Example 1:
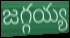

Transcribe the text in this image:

జగ్గయ్య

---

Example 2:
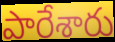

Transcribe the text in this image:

పారేశారు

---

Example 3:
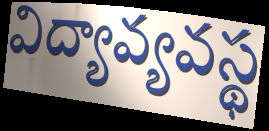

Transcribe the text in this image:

విద్యావ్యవస్థ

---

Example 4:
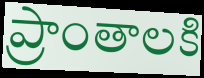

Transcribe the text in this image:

ప్రాంతాలకి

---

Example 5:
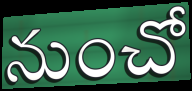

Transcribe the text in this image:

నుంచో